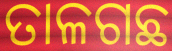
ତାଳଗଛ